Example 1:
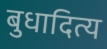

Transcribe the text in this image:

बुधादित्य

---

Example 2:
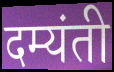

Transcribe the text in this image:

दम्यंती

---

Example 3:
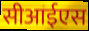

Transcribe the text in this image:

सीआईएस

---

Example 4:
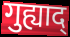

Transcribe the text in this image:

गुह्याद्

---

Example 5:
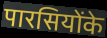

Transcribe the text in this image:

पारसियोंके